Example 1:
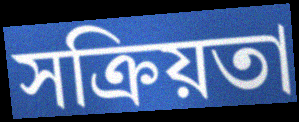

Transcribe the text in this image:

সক্রিয়তা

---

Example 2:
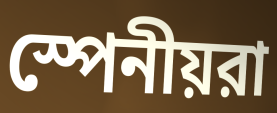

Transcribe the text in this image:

স্পেনীয়রা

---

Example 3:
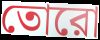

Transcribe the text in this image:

তোরো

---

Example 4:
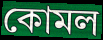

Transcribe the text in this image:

কোমল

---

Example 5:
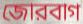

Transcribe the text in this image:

জোরবাগ